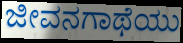
ಜೀವನಗಾಥೆಯು